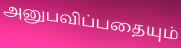
அனுபவிப்பதையும்